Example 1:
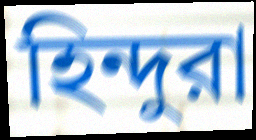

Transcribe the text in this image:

হিন্দুরা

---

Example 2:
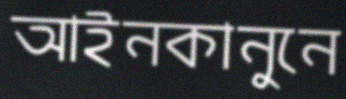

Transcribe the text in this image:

আইনকানুনে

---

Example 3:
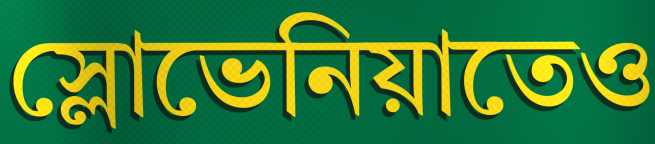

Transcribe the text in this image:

স্লোভেনিয়াতেও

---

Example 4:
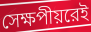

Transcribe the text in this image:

সেক্ষপীয়রেই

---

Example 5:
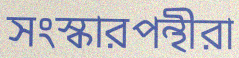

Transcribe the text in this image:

সংস্কারপন্থীরা